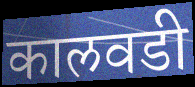
कालवडी